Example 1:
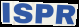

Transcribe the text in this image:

ISPR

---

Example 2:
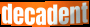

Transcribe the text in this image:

decadent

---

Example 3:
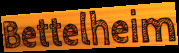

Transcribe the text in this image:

Bettelheim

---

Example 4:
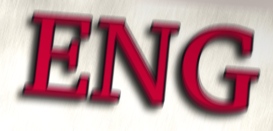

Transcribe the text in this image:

ENG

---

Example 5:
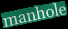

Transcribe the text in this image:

manhole